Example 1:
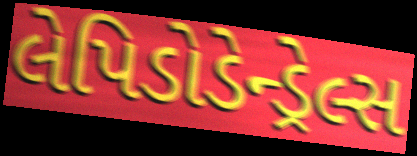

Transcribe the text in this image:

લેપિડોડેન્ડ્રેલ્સ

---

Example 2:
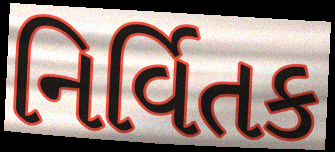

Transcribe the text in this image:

નિર્વિતક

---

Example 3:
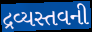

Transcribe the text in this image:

દ્રવ્યસ્તવની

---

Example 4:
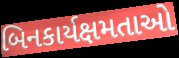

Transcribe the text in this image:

બિનકાર્યક્ષમતાઓ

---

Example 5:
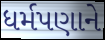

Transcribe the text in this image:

ધર્મપણાને